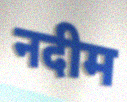
नदीम